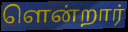
ளென்றார்